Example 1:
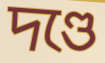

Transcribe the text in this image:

দণ্ডে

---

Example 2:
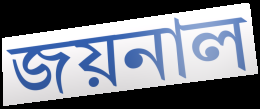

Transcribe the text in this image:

জয়নাল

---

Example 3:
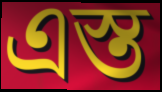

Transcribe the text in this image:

এস্ত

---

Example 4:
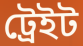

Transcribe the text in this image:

ট্রেইট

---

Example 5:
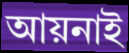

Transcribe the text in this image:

আয়নাই